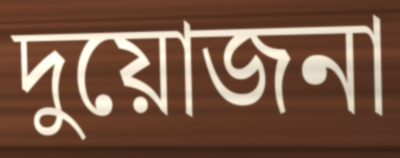
দুয়োজনা